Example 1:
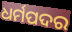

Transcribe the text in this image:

ଧର୍ମପଦର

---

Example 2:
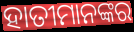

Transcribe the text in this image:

ହାତୀମାନଙ୍କର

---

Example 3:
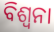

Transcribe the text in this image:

ବିଶ୍ୱନା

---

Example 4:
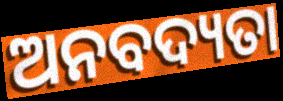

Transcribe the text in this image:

ଅନବଦ୍ୟତା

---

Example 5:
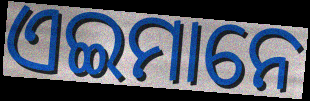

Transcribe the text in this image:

ଏଇମାନେ